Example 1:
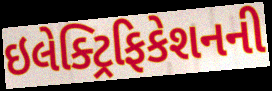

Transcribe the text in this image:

ઇલેક્ટ્રિફિકેશનની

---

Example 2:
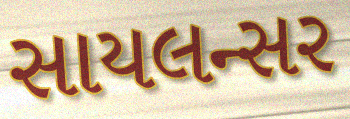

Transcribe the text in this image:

સાયલન્સર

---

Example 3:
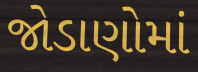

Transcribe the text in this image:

જોડાણોમાં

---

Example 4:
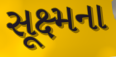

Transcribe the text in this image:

સૂક્ષ્મના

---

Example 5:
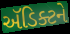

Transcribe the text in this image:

ઍડિક્ટને